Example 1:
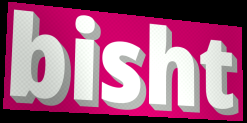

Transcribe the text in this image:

bisht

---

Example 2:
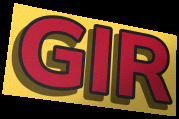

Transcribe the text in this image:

GIR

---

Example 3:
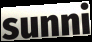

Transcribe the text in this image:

sunni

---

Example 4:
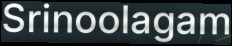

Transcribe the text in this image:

Srinoolagam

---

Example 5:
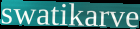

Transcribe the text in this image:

swatikarve